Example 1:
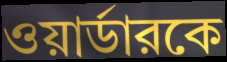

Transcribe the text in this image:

ওয়ার্ডারকে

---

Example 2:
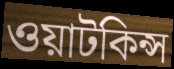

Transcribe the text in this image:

ওয়াটকিন্স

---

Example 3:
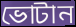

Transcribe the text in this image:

ভোটান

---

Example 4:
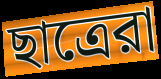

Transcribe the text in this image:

ছাত্রেরা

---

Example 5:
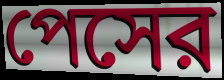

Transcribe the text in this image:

পেসের